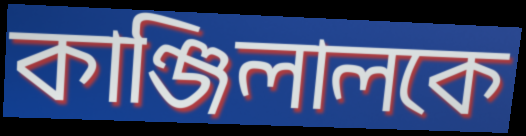
কাঞ্জিলালকে